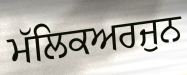
ਮੱਲਿਕਅਰਜੁਨ